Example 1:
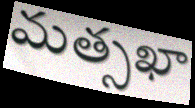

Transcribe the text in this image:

మత్సఖా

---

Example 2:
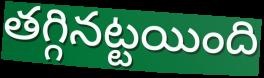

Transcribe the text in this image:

తగ్గినట్టయింది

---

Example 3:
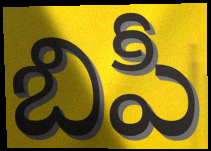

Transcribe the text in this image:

బిపీ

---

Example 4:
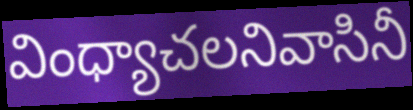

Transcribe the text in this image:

వింధ్యాచలనివాసినీ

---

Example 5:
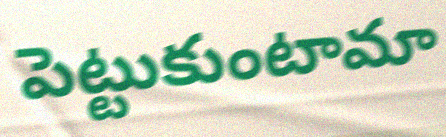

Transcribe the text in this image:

పెట్టుకుంటామా